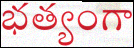
భత్యంగా